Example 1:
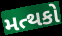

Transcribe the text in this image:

મત્થકો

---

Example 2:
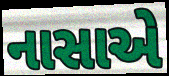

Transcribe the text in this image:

નાસાએ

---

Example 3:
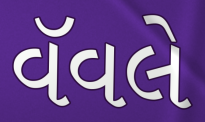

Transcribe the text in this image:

વૅવલે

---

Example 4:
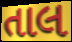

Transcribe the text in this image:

તાલ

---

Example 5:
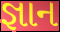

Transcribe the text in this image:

જ્ઞાન